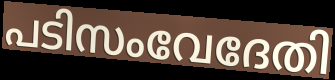
പടിസംവേദേതി